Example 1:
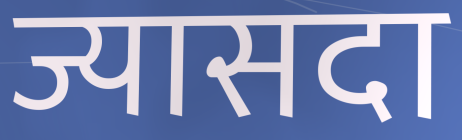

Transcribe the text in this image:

ज्यासदा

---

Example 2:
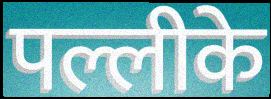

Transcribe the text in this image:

पल्लीके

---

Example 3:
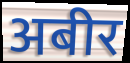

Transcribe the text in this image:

अबीर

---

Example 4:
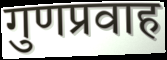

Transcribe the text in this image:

गुणप्रवाह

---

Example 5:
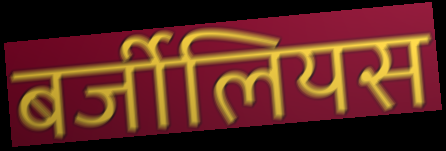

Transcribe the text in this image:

बर्जीलियस